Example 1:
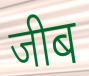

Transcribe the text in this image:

जीब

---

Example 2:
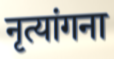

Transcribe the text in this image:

नृत्यांगना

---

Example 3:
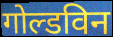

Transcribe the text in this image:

गोल्डविन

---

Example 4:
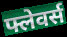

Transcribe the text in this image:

फ्लेवर्स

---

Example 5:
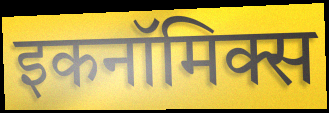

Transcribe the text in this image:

इकनॉमिक्स